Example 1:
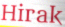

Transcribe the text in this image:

Hirak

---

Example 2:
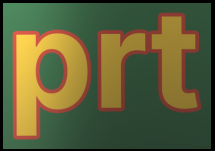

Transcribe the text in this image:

prt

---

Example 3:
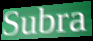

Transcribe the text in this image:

Subra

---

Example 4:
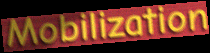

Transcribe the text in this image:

Mobilization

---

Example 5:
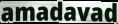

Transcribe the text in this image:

amadavad